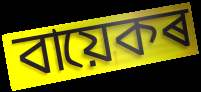
বায়েকৰ